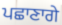
ਪਛਾਣਾਗੇ